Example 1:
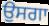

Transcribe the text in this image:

ਉਸਗਾ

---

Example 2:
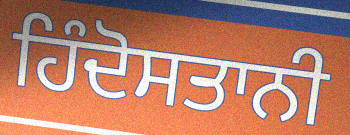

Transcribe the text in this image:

ਹਿੰਦੋਸਤਾਨੀ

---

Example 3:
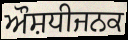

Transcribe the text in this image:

ਔਸ਼ਧੀਜਨਕ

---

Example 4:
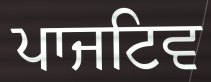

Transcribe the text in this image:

ਪਾਜਟਿਵ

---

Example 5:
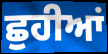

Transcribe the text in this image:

ਛੁਹੀਆਂ